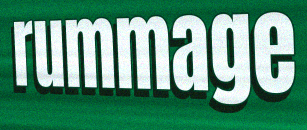
rummage